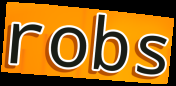
robs